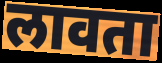
लावता